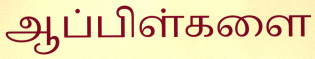
ஆப்பிள்களை